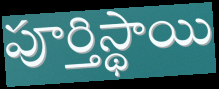
పూర్తిస్థాయి